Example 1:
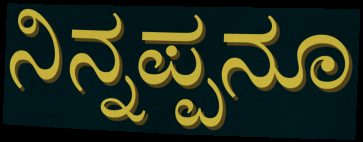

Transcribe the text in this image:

ನಿನ್ನಪ್ಪನೂ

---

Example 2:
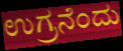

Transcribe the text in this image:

ಉಗ್ರನೆಂದು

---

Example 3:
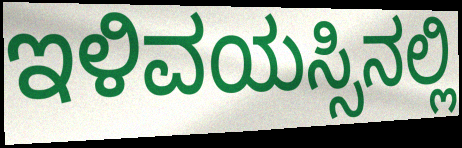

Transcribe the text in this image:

ಇಳಿವಯಸ್ಸಿನಲ್ಲಿ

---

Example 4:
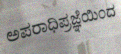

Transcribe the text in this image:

ಅಪರಾಧಿಪ್ರಜ್ಞೆಯಿಂದ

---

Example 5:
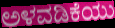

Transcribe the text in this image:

ಅಳವಡಿಕೆಯು